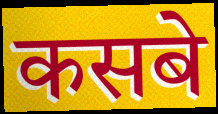
कसबे